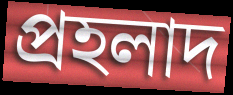
প্রহলাদ